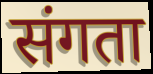
संगता